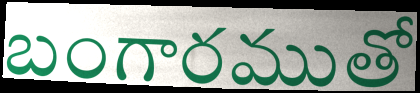
బంగారముతో